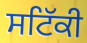
ਸਟਿੱਕੀ